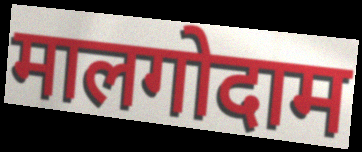
मालगोदाम